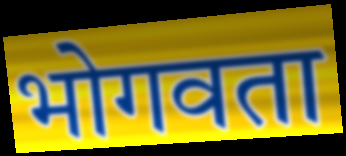
भोगवता